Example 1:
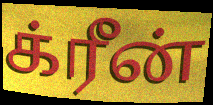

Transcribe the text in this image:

க்ரீன்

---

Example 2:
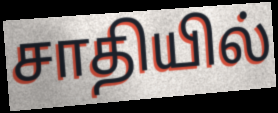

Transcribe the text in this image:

சாதியில்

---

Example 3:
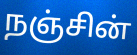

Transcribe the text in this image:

நஞ்சின்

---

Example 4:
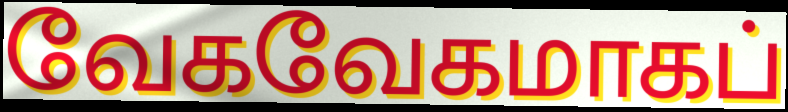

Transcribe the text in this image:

வேகவேகமாகப்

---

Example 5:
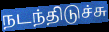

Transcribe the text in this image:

நடந்திடுச்சு